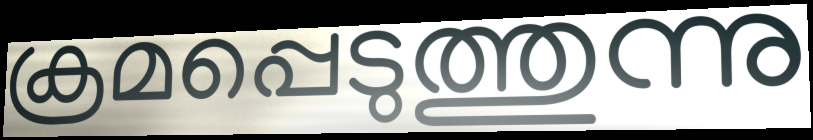
ക്രമപ്പെടുത്തുന്നു